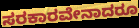
ಸರಕಾರವೇನಾದರೂ